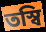
তস্বি